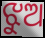
ଝୁଅ